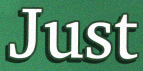
Just